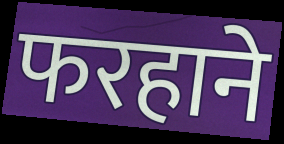
फरहाने